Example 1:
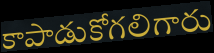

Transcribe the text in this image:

కాపాడుకోగలిగారు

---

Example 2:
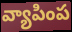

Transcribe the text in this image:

వ్యాపింప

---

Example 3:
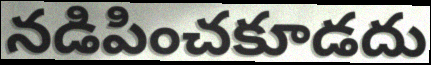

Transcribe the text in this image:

నడిపించకూడదు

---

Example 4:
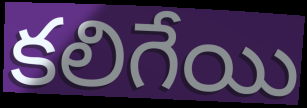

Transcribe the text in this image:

కలిగేయి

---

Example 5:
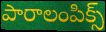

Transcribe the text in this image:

పారాలంపిక్స్